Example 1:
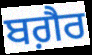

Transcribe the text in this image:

ਬਗ਼ੈਰ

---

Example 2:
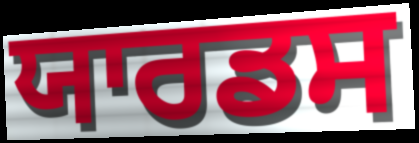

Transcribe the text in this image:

ਯਾਰਡਸ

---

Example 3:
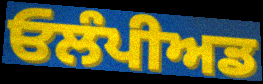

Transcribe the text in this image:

ਓਲੰਪੀਅਡ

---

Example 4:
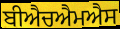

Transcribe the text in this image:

ਬੀਐਚਐਮਐਸ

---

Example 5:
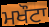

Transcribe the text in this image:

ਮਖੌਟਾ